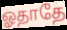
ஓதாதே